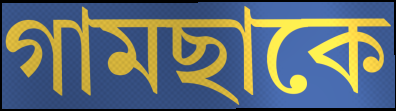
গামছাকে